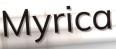
Myrica